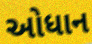
ઓધાન